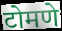
टोमणे